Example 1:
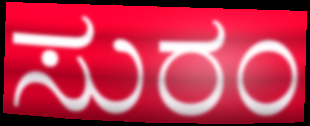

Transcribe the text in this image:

ಸುರಂ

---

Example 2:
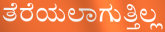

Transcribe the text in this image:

ತೆರೆಯಲಾಗುತ್ತಿಲ್ಲ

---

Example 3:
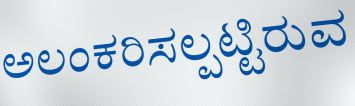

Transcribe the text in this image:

ಅಲಂಕರಿಸಲ್ಪಟ್ಟಿರುವ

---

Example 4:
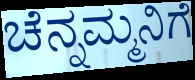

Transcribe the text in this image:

ಚೆನ್ನಮ್ಮನಿಗೆ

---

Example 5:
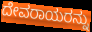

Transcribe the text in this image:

ದೇವರಾಯರನ್ನು